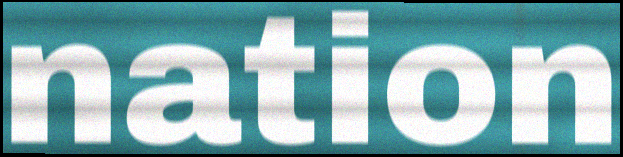
nation